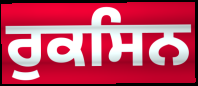
ਰੁਕਸਿਨ